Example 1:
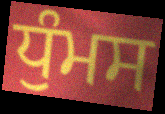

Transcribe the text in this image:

ਧੁੰਮਸ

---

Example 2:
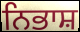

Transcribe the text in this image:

ਨਿਭਾਸ਼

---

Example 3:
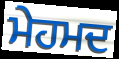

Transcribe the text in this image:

ਮੇਹਮਦ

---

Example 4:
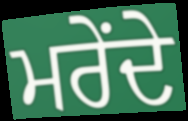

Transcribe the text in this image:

ਮਰੇਂਦੇ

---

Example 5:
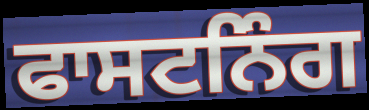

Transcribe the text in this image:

ਫਾਸਟਨਿੰਗ